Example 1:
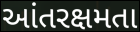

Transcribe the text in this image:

આંતરક્ષમતા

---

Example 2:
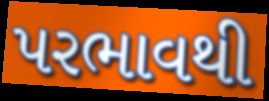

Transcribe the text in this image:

પરભાવથી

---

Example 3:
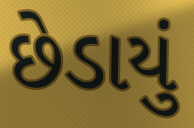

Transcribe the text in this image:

છેડાયું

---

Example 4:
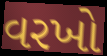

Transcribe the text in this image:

વરખો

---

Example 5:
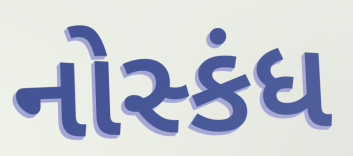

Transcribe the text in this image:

નોસ્કંધ